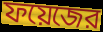
ফয়েজের